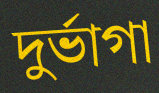
দুর্ভাগা